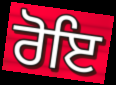
ਰੋਇ